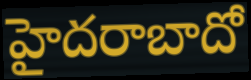
హైదరాబాదో